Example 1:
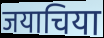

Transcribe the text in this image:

जयाचिया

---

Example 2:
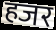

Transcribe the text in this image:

हजर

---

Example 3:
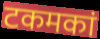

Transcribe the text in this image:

टकमकां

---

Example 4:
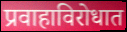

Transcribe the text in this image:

प्रवाहाविरोधात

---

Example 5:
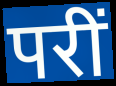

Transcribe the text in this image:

परीं